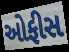
ઓફીસ